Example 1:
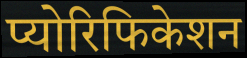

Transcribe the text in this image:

प्योरिफिकेशन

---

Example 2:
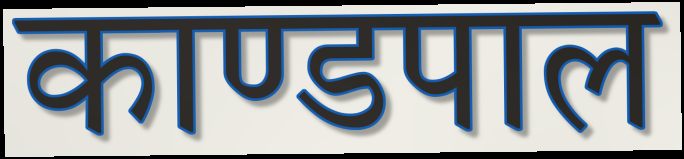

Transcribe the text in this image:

काण्डपाल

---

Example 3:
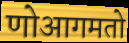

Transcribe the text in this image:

णोआगमतो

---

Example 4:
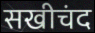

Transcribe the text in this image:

सखीचंद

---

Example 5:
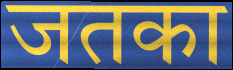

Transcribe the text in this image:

जतका